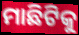
ମାଛିଟିକୁ